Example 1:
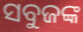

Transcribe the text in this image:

ସବୁଜଙ୍କ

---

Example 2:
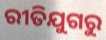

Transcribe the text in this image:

ରୀତିଯୁଗରୁ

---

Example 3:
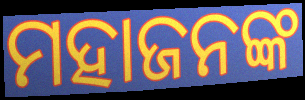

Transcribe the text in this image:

ମହାଜନଙ୍କ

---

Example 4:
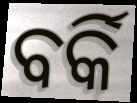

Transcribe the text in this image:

ବର୍କି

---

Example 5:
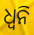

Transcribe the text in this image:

ଧ୍ବନି